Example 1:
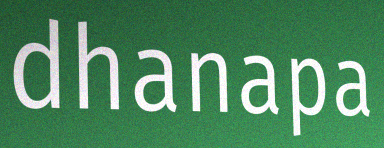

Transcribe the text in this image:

dhanapa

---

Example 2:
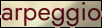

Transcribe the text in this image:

arpeggio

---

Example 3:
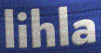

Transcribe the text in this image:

lihla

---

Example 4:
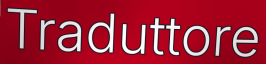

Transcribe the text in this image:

Traduttore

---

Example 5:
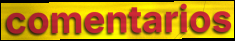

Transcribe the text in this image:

comentarios